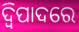
ଦ୍ୱିପାଦରେ